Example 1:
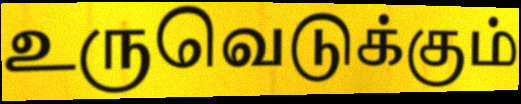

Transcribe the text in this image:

உருவெடுக்கும்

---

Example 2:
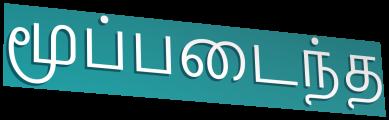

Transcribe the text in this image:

மூப்படைந்த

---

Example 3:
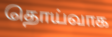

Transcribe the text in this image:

தொய்வாக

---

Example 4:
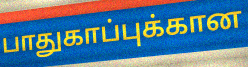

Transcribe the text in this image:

பாதுகாப்புக்கான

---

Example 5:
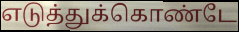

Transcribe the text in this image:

எடுத்துக்கொண்டே